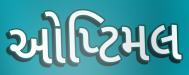
ઓપ્ટિમલ